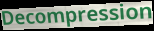
Decompression